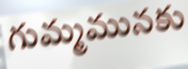
గుమ్మమునకు